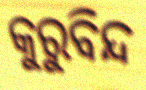
କୁରୁବିନ୍ଦ